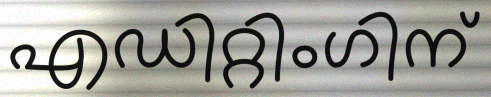
എഡിറ്റിംഗിന്